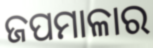
ଜପମାଳାର